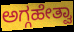
ಅಗ್ಗಹೇತ್ವಾ